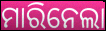
ମାରିନେଲା